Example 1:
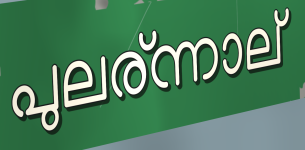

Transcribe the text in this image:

പുലര്ന്നാല്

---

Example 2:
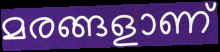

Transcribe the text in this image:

മരങ്ങളാണ്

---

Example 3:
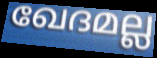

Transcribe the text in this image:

ഖേദമല്ല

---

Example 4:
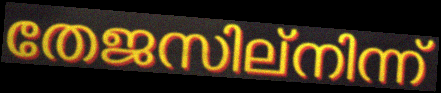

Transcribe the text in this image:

തേജസില്നിന്ന്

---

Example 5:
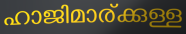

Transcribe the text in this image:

ഹാജിമാര്ക്കുള്ള